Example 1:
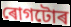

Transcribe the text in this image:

ৰোগটোৰ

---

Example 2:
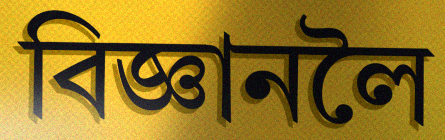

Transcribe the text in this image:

বিজ্ঞানলৈ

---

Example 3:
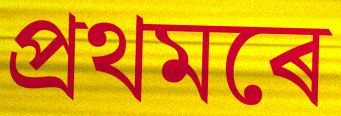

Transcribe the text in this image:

প্ৰথমৰে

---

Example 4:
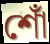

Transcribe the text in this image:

শোঁ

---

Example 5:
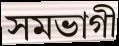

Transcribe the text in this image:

সমভাগী